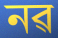
নৱ